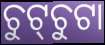
ଚୁଟ୍‌ଚୁଟା